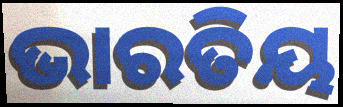
ଭାରତିୟ